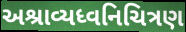
અશ્રાવ્યધ્વનિચિત્રણ